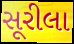
સૂરીલા